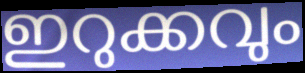
ഇറുക്കവും